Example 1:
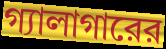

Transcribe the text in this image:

গ্যালাগারের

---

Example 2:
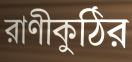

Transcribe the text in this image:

রাণীকুঠির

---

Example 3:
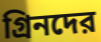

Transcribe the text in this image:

গ্রিনদের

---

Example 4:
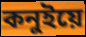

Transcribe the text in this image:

কনুইয়ে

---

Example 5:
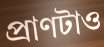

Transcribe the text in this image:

প্রাণটাও